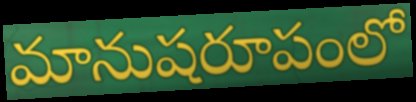
మానుషరూపంలో